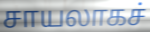
சாயலாகச்